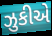
ઝુકીએ